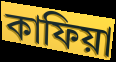
কাফিয়া